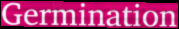
Germination